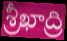
శ్రీఖాద్రి